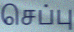
செப்பு